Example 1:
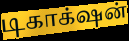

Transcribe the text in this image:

டிகாக்‌ஷன்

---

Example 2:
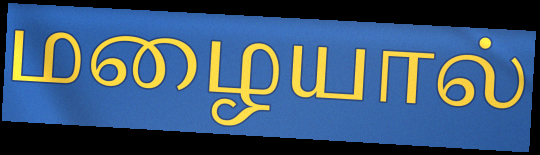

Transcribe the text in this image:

மழையால்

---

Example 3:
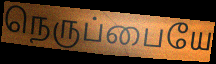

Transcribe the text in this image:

நெருப்பையே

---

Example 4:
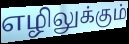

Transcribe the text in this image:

எழிலுக்கும்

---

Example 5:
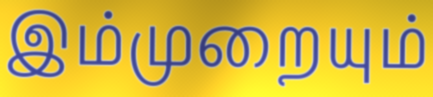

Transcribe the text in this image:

இம்முறையும்